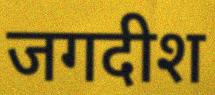
जगदीश